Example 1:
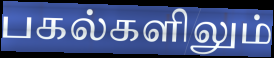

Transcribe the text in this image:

பகல்களிலும்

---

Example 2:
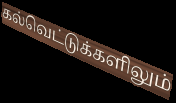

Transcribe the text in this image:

கல்வெட்டுக்களிலும்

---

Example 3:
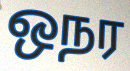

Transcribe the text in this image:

ஒநர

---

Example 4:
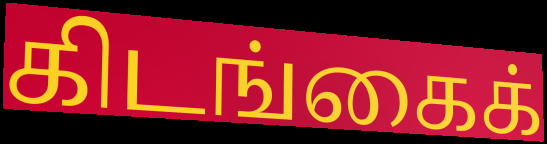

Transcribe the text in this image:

கிடங்கைக்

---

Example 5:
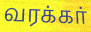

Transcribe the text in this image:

வரக்கர்